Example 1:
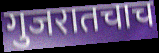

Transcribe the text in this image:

गुजरातचाच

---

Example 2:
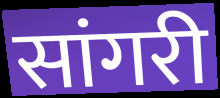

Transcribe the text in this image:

सांगरी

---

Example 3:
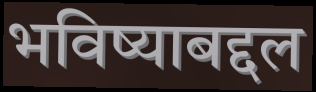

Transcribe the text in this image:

भविष्याबद्दल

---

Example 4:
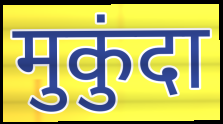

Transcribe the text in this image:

मुकुंदा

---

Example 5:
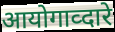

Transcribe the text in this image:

आयोगाव्दारे